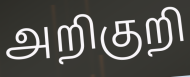
அறிகுறி